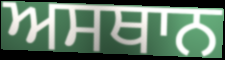
ਅਸਥਾਨ